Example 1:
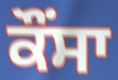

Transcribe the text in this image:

ਕੌਂਸਾ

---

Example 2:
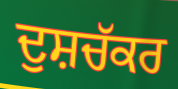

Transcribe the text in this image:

ਦੁਸ਼ਚੱਕਰ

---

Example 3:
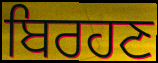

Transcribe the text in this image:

ਬਿਰਹਣ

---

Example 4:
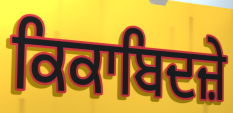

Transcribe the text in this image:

ਕਿਕਾਬਿਦਜ਼ੇ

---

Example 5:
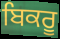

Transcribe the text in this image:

ਬਿਕਰੂ